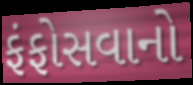
ફંફોસવાનો